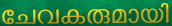
ചേവകരുമായി